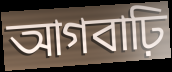
আগবাঢ়ি